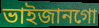
ভাইজানগো